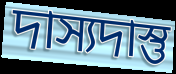
দাস্যদাস্তু